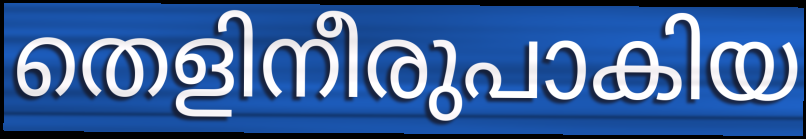
തെളിനീരുപാകിയ